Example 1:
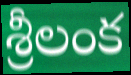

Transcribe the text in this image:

శ్రీలంక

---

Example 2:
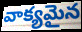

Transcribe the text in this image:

వాక్యమైన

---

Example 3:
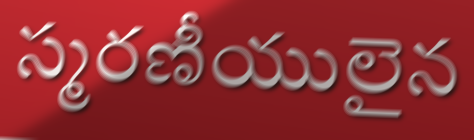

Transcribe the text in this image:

స్మరణీయులైన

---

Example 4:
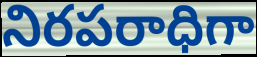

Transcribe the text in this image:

నిరపరాధిగా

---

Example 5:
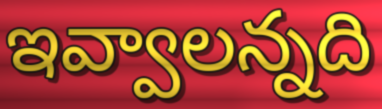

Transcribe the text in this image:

ఇవ్వాలన్నది